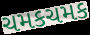
ચમકચમક